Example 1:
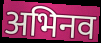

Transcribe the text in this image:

अभिनव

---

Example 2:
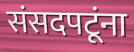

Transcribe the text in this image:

संसदपटूंना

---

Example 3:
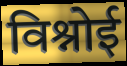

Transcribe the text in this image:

विश्नोई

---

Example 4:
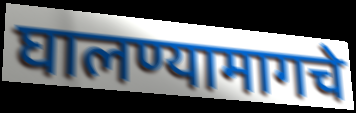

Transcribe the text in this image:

घालण्यामागचे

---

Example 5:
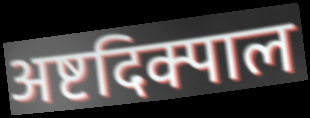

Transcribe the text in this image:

अष्टदिक्पाल